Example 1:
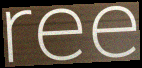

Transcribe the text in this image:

ree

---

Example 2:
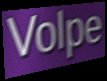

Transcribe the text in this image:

Volpe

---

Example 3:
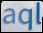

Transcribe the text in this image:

aql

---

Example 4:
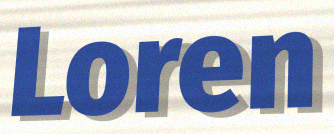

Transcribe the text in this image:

Loren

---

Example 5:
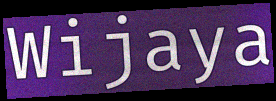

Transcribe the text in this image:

Wijaya